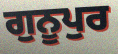
ਗੁਨੂਪੁਰ